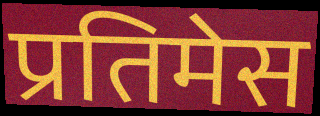
प्रतिमेस